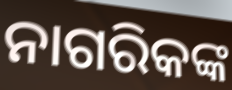
ନାଗରିକଙ୍କ